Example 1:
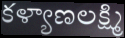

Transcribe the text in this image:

కళ్యాణలక్ష్మి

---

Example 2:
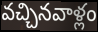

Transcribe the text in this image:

వచ్చినవాళ్లం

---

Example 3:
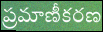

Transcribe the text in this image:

ప్రమాణీకరణ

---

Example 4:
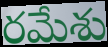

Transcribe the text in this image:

రమేశు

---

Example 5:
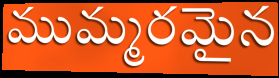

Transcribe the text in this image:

ముమ్మరమైన